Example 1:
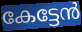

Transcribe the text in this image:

കേട്ടേൻ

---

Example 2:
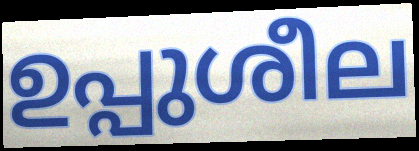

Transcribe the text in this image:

ഉപ്പുശീല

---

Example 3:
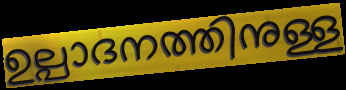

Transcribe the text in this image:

ഉല്പാദനത്തിനുള്ള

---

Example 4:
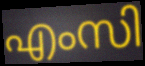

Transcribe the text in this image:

എംസി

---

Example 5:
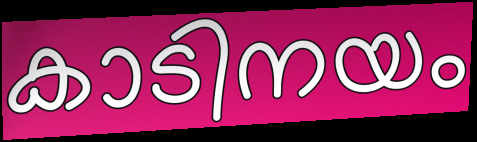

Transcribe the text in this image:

കാടിനയം